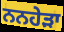
ਨਨਹੇੜਾ